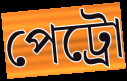
পেট্রো